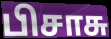
பிசாசு